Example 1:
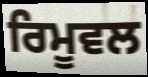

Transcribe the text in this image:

ਰਿਮੂਵਲ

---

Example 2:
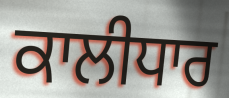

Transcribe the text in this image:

ਕਾਲੀਧਾਰ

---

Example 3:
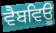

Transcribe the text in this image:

ਵੈਬਵਿਊ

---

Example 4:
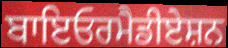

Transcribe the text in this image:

ਬਾਇਓਰਮੈਡੀਏਸ਼ਨ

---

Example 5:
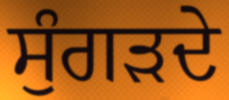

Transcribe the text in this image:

ਸੁੰਗੜਦੇ